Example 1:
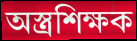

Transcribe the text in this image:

অস্ত্রশিক্ষক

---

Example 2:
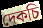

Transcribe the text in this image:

দেকচি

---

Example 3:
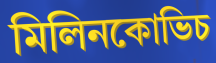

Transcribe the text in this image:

মিলিনকোভিচ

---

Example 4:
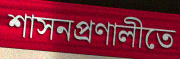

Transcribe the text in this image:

শাসনপ্রণালীতে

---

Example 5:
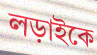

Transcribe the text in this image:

লড়াইকে